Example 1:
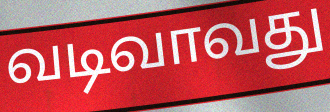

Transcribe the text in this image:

வடிவாவது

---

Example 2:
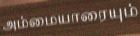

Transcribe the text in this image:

அம்மையாரையும்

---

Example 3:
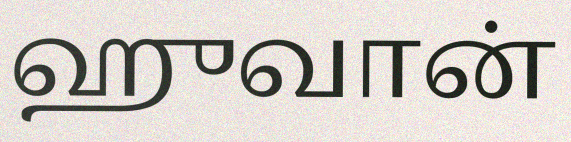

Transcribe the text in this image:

ஹுவான்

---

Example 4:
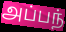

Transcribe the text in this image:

அப்பந்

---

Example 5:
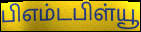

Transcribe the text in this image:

பிஎம்டபிள்யூ